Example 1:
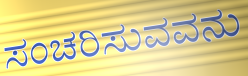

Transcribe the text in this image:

ಸಂಚರಿಸುವವನು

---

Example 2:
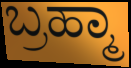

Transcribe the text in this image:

ಬ್ರಹ್ಮಾ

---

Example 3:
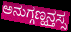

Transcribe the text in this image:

ಅನುಗ್ಗಣ್ಹನ್ತಸ್ಸ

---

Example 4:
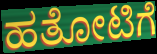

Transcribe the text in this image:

ಹತೋಟಿಗೆ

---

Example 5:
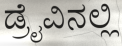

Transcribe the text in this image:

ಡ್ರೈವಿನಲ್ಲಿ